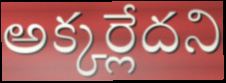
అక్కర్లేదని